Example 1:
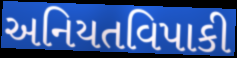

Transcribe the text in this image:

અનિયતવિપાકી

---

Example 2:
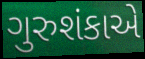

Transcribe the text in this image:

ગુરુશંકાએ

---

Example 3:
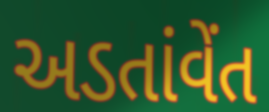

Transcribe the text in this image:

અડતાંવેંત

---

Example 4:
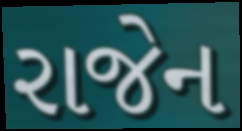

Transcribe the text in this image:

રાજેન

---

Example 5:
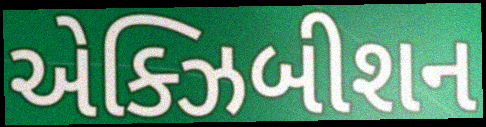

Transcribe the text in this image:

એક્ઝિબીશન